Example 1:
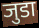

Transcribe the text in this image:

जुडा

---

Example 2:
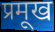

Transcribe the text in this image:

प्रमूख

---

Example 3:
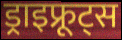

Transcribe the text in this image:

ड्राइफ्रूट्स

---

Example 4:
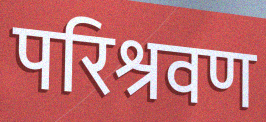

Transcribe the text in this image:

परिश्रवण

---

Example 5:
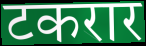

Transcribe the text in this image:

टकरार